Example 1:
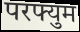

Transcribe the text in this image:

परफ्युम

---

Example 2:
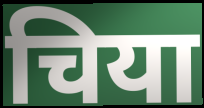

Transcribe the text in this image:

चिया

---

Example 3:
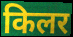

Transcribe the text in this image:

किलर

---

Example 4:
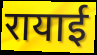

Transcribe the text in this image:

रायाई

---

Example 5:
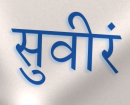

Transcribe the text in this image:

सुवीरं